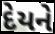
દેયને